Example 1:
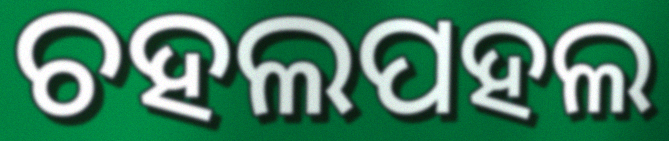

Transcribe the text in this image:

ଚହଲପହଲ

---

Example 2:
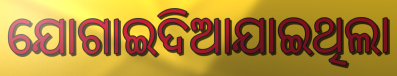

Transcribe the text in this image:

ଯୋଗାଇଦିଆଯାଇଥିଲା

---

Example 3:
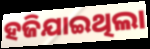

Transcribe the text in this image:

ହଜିଯାଇଥିଲା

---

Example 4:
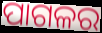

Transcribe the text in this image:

ପାଗଳର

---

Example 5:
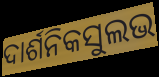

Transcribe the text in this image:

ଦାର୍ଶନିକସୁଲଭ